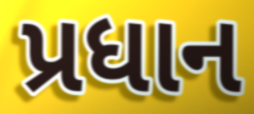
પ્રધાન